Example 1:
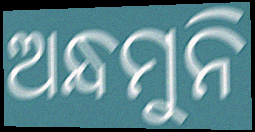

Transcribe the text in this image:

ଅନ୍ଧମୁନି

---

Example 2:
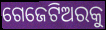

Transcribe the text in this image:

ଗେଜେଟିଅରକୁ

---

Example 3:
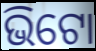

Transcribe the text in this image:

ଭିଟୋ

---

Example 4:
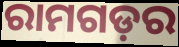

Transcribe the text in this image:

ରାମଗଡ଼ର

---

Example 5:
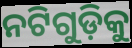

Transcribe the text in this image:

ନଟିଗୁଡ଼ିକୁ